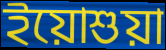
ইয়োশুয়া